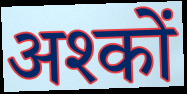
अश्कों